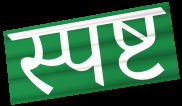
स्पष्ट